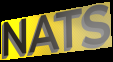
NATS